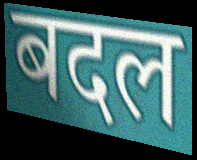
बदल